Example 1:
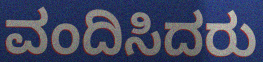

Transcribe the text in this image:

ವಂದಿಸಿದರು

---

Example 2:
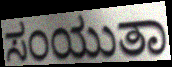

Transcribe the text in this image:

ಸಂಯುತಾ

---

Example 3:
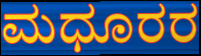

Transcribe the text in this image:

ಮಧೂರರ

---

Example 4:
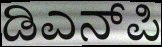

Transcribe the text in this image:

ಡಿಎನ್‌ಪಿ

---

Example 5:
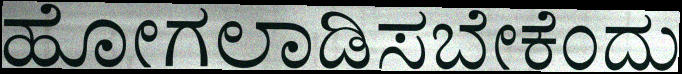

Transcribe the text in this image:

ಹೋಗಲಾಡಿಸಬೇಕೆಂದು